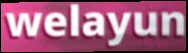
welayun